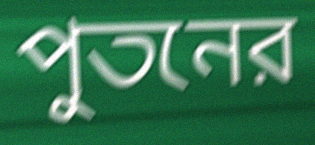
পুতনের